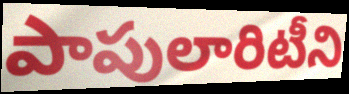
పాపులారిటీని